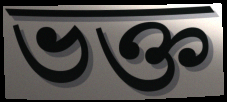
ভক্ত